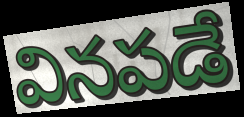
వినపడే